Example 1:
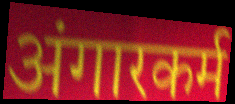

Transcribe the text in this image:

अंगारकर्म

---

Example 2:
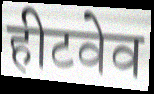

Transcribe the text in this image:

हीटवेव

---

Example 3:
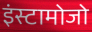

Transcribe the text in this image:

इंस्टामोजो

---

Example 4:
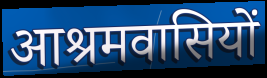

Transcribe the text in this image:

आश्रमवासियों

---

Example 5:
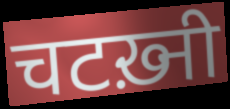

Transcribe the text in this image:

चटख़्नी